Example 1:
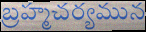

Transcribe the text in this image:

బ్రహ్మచర్యమున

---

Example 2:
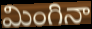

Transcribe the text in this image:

మింగినా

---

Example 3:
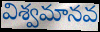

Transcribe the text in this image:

విశ్వమానవ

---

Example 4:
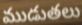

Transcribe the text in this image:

ముడుతలు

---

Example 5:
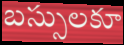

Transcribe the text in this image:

బస్సులకూ